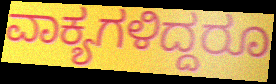
ವಾಕ್ಯಗಳಿದ್ದರೂ